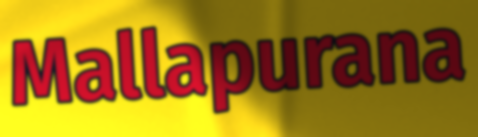
Mallapurana